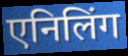
एनिलिंग